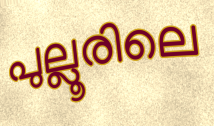
പുല്ലൂരിലെ